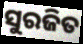
ସୁରଜିତ